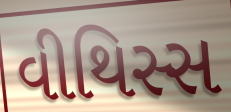
વીથિસ્સ